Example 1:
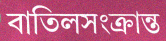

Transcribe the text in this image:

বাতিলসংক্রান্ত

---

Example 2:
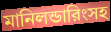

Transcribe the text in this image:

মানিলন্ডারিংসহ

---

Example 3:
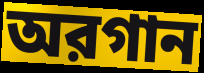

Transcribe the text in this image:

অরগান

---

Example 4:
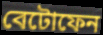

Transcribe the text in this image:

বেটোফেন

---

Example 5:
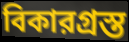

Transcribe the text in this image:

বিকারগ্রস্ত